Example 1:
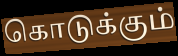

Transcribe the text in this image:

கொடுக்கும்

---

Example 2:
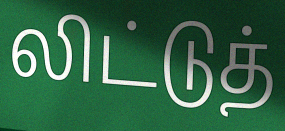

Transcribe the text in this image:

லிட்டுத்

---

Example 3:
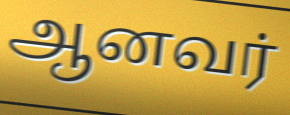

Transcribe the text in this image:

ஆனவர்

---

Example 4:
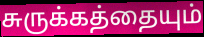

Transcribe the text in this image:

சுருக்கத்தையும்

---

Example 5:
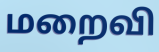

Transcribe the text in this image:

மறைவி